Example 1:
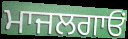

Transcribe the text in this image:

ਮਾਜਲਗਾਓਂ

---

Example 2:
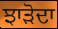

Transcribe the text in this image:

ਝਾੜੋਦਾ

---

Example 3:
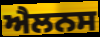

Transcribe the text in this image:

ਐਲਨਸ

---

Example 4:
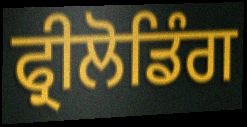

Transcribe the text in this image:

ਫ੍ਰੀਲੋਡਿੰਗ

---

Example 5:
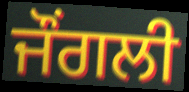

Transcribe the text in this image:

ਜੌਂਗਲੀ